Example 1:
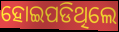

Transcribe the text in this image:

ହୋଇପଡିଥିଲେ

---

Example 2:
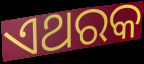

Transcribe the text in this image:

ଏଥରକ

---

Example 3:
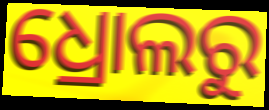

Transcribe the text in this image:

ଧ୍ରୋଲରୁ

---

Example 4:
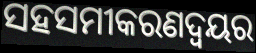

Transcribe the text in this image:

ସହସମୀକରଣଦ୍ୱୟର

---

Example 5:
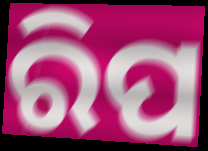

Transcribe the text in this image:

ରିପ